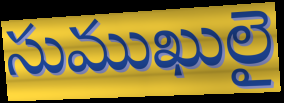
సుముఖులై